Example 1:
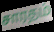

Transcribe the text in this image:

சாரதம்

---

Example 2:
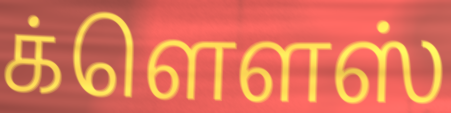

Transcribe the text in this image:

க்ளௌஸ்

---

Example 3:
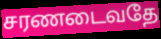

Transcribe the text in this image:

சரணடைவதே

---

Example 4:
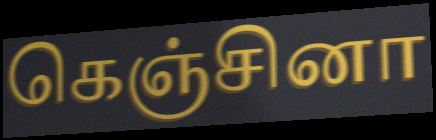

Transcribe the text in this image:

கெஞ்சினா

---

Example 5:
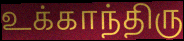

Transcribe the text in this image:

உக்காந்திரு